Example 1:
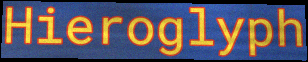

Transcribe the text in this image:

Hieroglyph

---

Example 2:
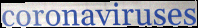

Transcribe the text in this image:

coronaviruses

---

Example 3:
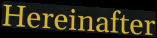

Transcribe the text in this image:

Hereinafter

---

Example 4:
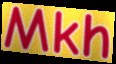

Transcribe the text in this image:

Mkh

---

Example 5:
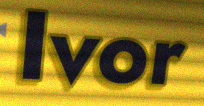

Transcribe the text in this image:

Ivor